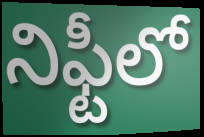
నిఫ్టీలో